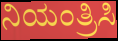
ನಿಯಂತ್ರಿಸಿ